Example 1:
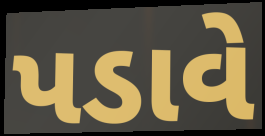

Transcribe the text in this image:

પડાવે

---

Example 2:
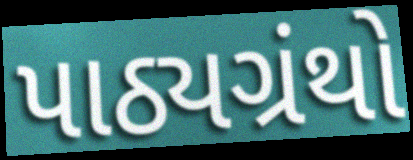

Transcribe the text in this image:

પાઠ્યગ્રંથો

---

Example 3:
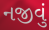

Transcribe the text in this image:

નજીવું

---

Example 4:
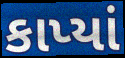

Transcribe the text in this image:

કાપ્યાં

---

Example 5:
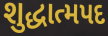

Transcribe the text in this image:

શુદ્ધાત્મપદ